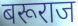
बरूराज